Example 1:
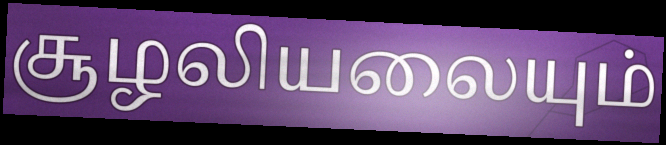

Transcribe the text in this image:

சூழலியலையும்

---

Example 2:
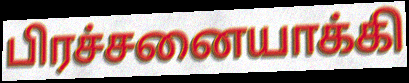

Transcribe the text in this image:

பிரச்சனையாக்கி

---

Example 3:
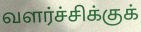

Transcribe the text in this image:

வளர்ச்சிக்குக்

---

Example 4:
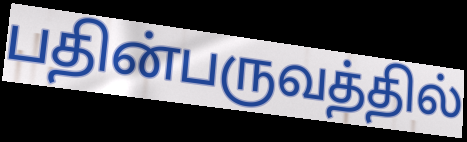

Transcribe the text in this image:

பதின்பருவத்தில்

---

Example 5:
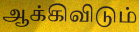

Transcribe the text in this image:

ஆக்கிவிடும்